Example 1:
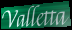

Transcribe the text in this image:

Valletta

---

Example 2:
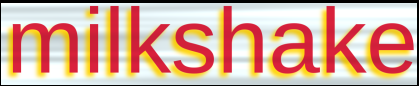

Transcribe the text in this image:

milkshake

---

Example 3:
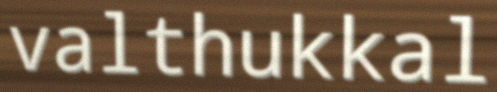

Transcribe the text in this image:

valthukkal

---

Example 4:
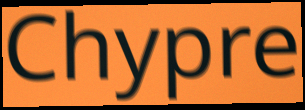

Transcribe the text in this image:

Chypre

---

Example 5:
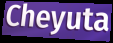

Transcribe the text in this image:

Cheyuta